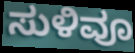
ಸುಳಿವೂ